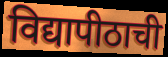
विद्यापीठाची